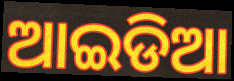
ଆଇଡିଆ